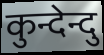
कुन्देन्दु